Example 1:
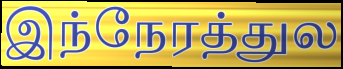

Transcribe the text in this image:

இந்நேரத்துல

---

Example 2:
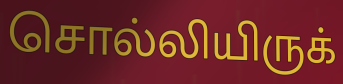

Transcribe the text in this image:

சொல்லியிருக்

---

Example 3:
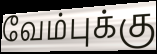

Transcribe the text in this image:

வேம்புக்கு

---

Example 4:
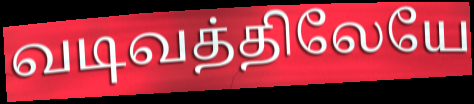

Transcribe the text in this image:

வடிவத்திலேயே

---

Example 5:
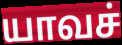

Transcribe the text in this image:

யாவச்